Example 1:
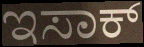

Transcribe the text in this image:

ಇಸಾಕ್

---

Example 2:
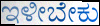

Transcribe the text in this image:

ಇಳೀಬೇಕು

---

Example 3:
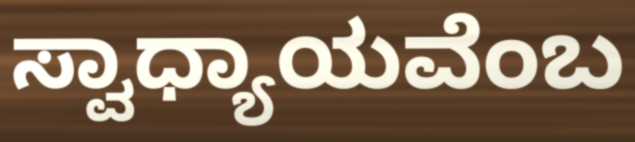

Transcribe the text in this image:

ಸ್ವಾಧ್ಯಾಯವೆಂಬ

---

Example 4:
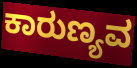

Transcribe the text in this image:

ಕಾರುಣ್ಯವ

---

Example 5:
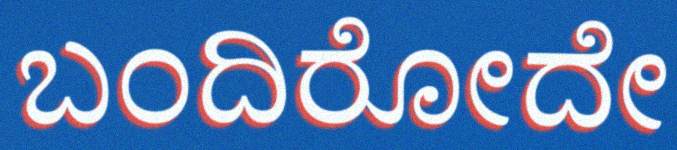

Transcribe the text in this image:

ಬಂದಿರೋದೇ